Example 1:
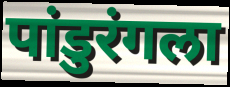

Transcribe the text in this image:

पांडुरंगला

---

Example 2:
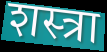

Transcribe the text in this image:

शस्त्रा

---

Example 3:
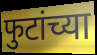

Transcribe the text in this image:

फुटांच्‍या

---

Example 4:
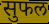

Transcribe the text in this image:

सुफल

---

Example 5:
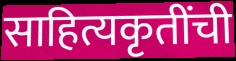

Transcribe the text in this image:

साहित्यकृतींची